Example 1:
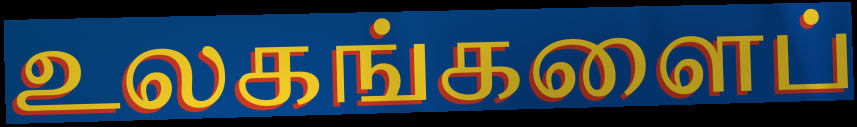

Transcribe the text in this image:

உலகங்களைப்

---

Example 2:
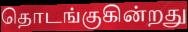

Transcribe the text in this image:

தொடங்குகின்றது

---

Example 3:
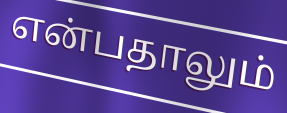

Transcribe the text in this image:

என்பதாலும்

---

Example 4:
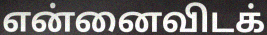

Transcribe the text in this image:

என்னைவிடக்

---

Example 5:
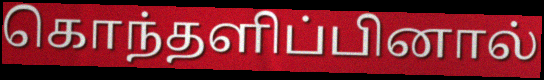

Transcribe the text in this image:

கொந்தளிப்பினால்